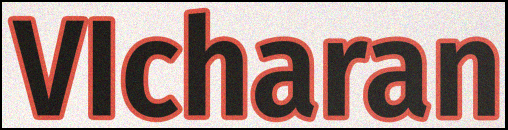
VIcharan